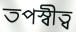
তপস্বীত্ব